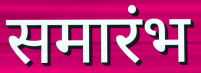
समारंभ